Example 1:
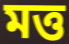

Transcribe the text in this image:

মত্ত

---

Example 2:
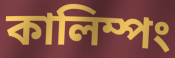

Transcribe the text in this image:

কালিম্পং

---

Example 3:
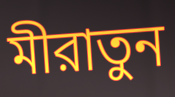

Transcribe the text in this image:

মীরাতুন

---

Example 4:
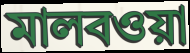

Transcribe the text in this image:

মালবওয়া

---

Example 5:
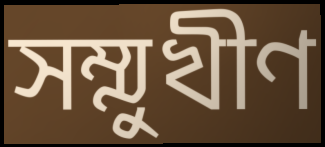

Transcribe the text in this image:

সম্মুখীণ